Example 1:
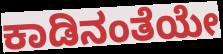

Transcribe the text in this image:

ಕಾಡಿನಂತೆಯೇ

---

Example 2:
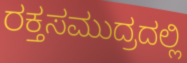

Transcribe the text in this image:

ರಕ್ತಸಮುದ್ರದಲ್ಲಿ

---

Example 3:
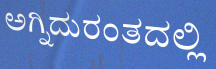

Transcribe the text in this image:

ಅಗ್ನಿದುರಂತದಲ್ಲಿ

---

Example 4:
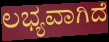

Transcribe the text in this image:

ಲಭ್ಯವಾಗಿದೆ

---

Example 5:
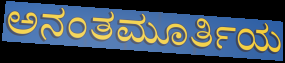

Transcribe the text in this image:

ಅನಂತಮೂರ್ತಿಯ